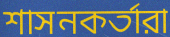
শাসনকর্তারা